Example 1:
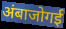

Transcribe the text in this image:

अंबाजोगई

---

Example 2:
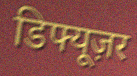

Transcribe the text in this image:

डिफ्यूज़र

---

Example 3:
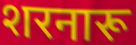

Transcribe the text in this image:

शरनारू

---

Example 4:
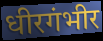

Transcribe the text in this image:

धीरगंभीर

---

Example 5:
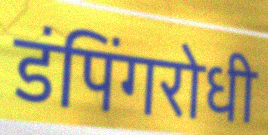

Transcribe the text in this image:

डंपिंगरोधी